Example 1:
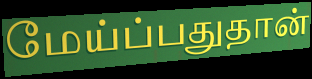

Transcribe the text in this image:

மேய்ப்பதுதான்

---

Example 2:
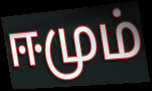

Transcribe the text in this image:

ஈமும்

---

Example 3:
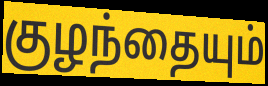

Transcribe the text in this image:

குழந்தையும்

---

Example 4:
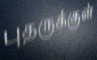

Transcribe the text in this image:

புதருக்குள்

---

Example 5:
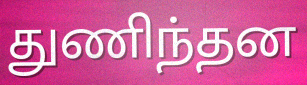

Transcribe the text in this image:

துணிந்தன